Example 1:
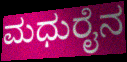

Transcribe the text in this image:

ಮಧುರೈನ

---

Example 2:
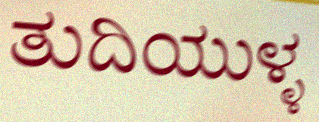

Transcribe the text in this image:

ತುದಿಯುಳ್ಳ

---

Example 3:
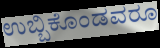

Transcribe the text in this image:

ಉಬ್ಬಿಕೊಂಡವರೂ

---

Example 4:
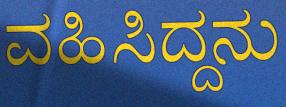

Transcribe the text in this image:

ವಹಿಸಿದ್ದನು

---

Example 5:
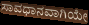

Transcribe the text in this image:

ಸಾವಧಾನವಾಗಿಯೇ